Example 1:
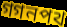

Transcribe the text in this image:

গগনপথ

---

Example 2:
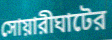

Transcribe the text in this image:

সোয়ারীঘাটের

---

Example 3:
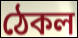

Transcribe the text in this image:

ঠেকল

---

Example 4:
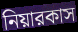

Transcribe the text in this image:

নিয়ারকাস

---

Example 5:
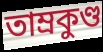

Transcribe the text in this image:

তাম্রকুণ্ড